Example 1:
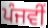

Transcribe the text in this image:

ਪੰਜਵੀਂ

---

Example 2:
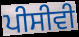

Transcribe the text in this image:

ਪੀਸੀਵੀ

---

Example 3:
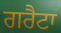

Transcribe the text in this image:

ਗਰੈਟਾ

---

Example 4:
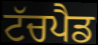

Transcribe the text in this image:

ਟੱਚਪੈਡ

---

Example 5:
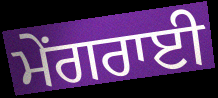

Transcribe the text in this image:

ਮੇਂਗਰਾਈ